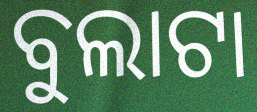
ବୁଲାଟା